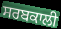
ਸਰਬਕਾਲੀ